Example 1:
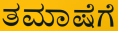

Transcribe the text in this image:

ತಮಾಷೆಗೆ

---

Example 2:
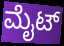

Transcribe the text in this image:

ಮೈಟ್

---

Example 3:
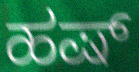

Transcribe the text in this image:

ಹಷ್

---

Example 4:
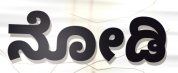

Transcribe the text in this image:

ನೋಡಿ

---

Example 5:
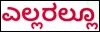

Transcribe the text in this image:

ಎಲ್ಲರಲ್ಲೂ